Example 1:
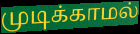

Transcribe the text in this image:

முடிக்காமல்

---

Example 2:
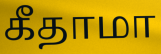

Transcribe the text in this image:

கீதாமா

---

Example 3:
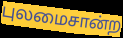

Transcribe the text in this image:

புலமைசான்ற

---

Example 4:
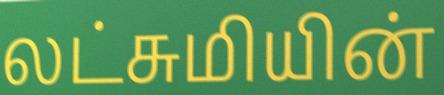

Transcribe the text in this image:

லட்சுமியின்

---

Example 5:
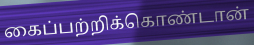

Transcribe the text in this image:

கைப்பற்றிக்கொண்டான்